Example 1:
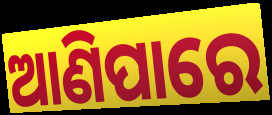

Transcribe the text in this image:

ଆଣିପାରେ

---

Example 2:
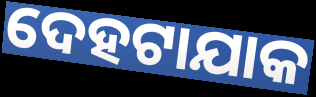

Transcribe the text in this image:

ଦେହଟାଯାକ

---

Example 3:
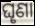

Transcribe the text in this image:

ଘୃଣା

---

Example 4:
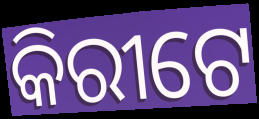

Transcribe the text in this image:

କିରୀଟେ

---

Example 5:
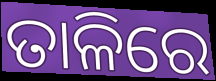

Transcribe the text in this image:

ତାଳିରେ